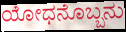
ಯೋಧನೊಬ್ಬನು